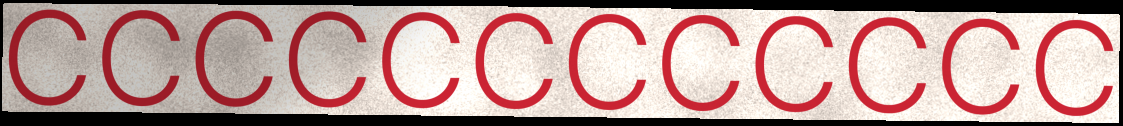
CCCCCCCCCCCC